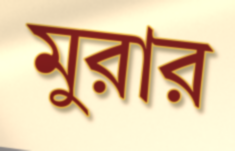
মুরার